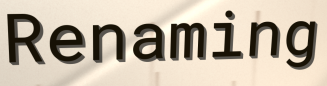
Renaming